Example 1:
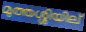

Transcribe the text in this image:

മുത്തശ്ശിയില്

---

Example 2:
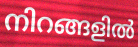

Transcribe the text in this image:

നിറങ്ങളിൽ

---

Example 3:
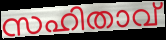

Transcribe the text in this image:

സഹിതാവ്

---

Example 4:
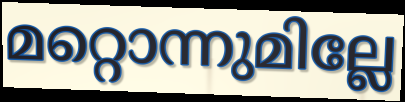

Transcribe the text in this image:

മറ്റൊന്നുമില്ലേ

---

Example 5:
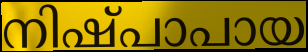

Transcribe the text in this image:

നിഷ്പാപായ